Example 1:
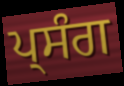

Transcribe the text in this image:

ਪ੍ਸੰਗ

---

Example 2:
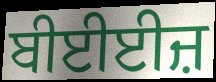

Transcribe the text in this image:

ਬੀਈਈਜ਼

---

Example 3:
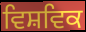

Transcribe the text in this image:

ਵਿਸ਼ਵਿਕ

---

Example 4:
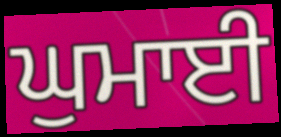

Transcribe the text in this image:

ਘੁਮਾਈ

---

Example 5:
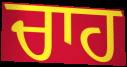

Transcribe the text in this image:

ਚਾਹ